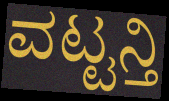
ವಟ್ಟನ್ತಿ